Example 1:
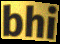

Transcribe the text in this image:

bhi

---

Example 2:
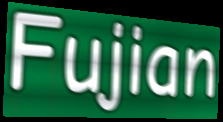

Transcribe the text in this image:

Fujian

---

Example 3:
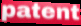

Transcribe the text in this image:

patent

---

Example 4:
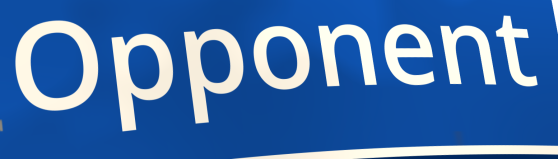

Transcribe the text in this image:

Opponent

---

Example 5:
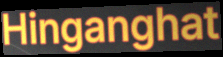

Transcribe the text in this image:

Hinganghat